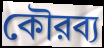
কৌরব্য